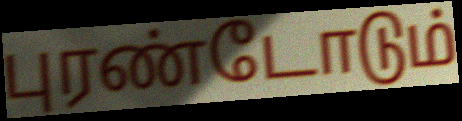
புரண்டோடும்